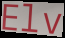
Elv